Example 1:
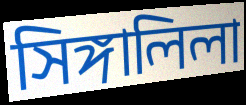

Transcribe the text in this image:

সিঙ্গালিলা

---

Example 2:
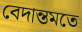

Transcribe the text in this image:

বেদান্তমতে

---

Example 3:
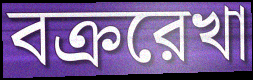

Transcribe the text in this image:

বক্ররেখা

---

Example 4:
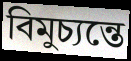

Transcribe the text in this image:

বিমুচ্যন্তে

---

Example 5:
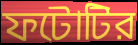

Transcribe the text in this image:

ফটোটির